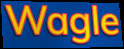
Wagle